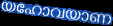
യഹോവയാണ